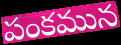
పంకమున